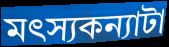
মৎস্যকন্যাটা